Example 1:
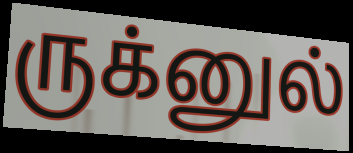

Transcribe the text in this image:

ருக்னுல்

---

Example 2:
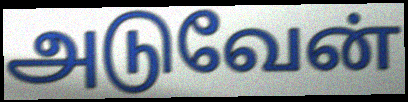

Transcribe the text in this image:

அடுவேன்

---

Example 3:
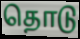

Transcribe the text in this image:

தொடு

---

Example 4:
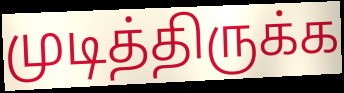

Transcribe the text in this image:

முடித்திருக்க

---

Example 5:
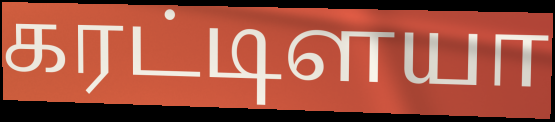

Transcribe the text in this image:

கரட்டிளயா